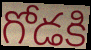
గోడకి